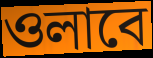
ওলাবে